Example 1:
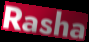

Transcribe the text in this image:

Rasha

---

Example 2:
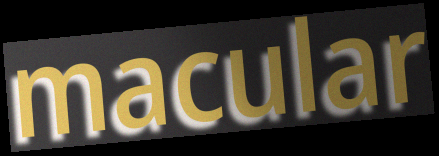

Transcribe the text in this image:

macular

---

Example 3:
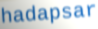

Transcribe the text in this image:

hadapsar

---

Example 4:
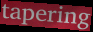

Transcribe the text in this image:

tapering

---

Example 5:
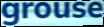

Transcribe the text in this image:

grouse